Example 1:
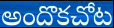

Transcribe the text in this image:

అందొకచోట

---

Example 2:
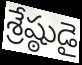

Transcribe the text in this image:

శ్రేష్ఠుడై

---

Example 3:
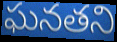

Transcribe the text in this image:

ఘనతని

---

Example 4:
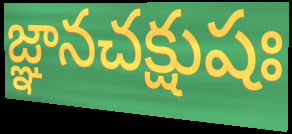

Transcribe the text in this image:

జ్ఞానచక్షుషః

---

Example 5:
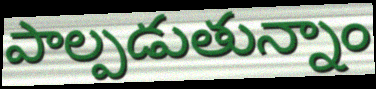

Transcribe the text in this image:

పాల్పడుతున్నాం